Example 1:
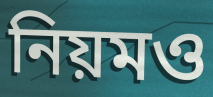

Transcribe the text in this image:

নিয়মও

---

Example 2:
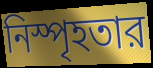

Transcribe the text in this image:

নিস্পৃহতার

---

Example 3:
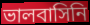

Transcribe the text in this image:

ভালবাসিনি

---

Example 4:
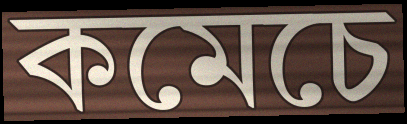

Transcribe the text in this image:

কমেচে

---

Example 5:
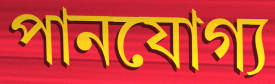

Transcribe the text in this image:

পানযোগ্য